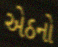
એઠનો